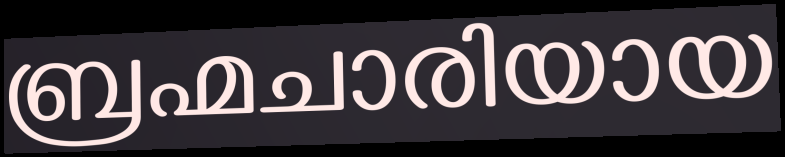
ബ്രഹ്മചാരിയായ